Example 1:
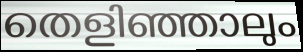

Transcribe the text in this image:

തെളിഞ്ഞാലും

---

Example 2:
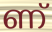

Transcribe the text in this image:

ണ്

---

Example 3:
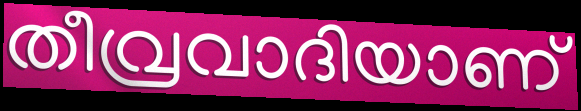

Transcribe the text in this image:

തീവ്രവാദിയാണ്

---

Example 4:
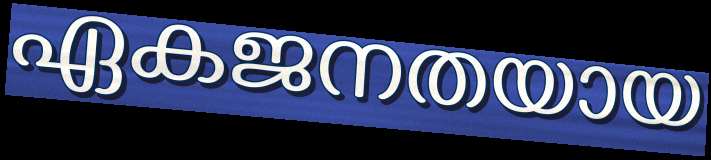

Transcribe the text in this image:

ഏകജനതയായ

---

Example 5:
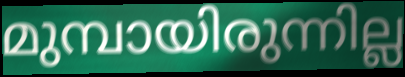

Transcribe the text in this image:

മുമ്പായിരുന്നില്ല